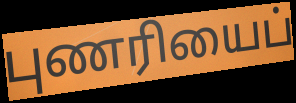
புணரியைப்